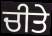
ਚੀਤੇ